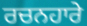
ਰਚਨਹਾਰੇ